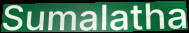
Sumalatha